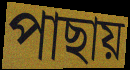
পাছায়